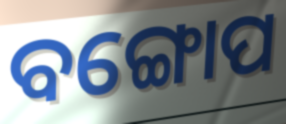
ବଙ୍ଗୋପ